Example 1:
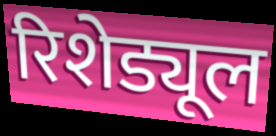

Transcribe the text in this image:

रिशेड्यूल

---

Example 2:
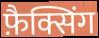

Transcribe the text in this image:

फ़ैक्सिंग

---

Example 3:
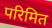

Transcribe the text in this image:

परिमित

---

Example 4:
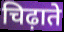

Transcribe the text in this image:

चिढ़ाते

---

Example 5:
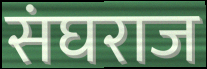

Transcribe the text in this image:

संघराज